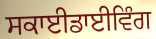
ਸਕਾਈਡਾਈਵਿੰਗ